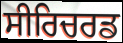
ਸੀਰਿਚਰਡ